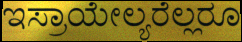
ಇಸ್ರಾಯೇಲ್ಯರೆಲ್ಲರೂ